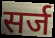
सर्ज